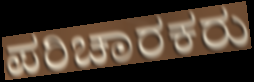
ಪರಿಚಾರಕರು